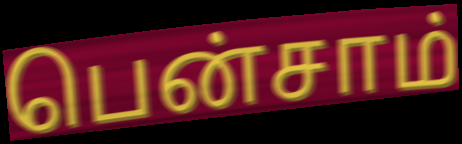
பென்சாம்